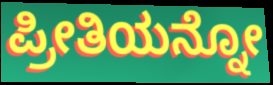
ಪ್ರೀತಿಯನ್ನೋ